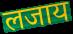
लजाय